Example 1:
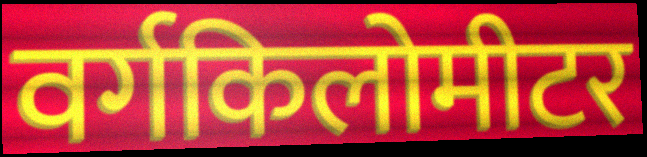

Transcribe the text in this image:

वर्गकिलोमीटर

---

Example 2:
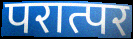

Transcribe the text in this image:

परात्‍पर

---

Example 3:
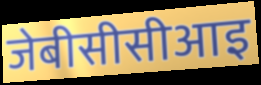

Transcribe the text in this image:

जेबीसीसीआइ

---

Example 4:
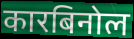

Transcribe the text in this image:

कारबिनोल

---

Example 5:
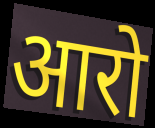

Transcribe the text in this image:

आरो